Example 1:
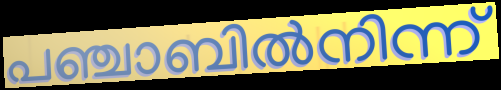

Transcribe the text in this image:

പഞ്ചാബിൽനിന്ന്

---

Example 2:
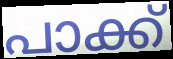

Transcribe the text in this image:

പാക്ക്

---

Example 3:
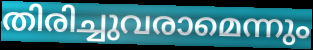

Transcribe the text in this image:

തിരിച്ചുവരാമെന്നും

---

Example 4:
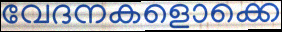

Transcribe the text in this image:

വേദനകളൊക്കെ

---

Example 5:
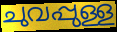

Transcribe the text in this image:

ചുവപ്പുള്ള